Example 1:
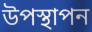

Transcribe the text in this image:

উপস্থাপন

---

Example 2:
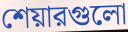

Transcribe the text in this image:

শেয়ারগুলো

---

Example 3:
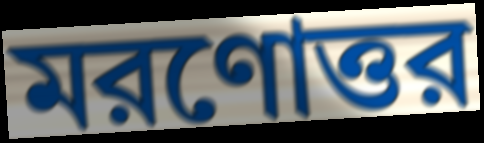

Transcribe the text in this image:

মরণোত্তর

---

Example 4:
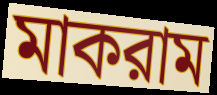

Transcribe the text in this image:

মাকরাম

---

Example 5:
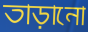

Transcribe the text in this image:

তাড়ানো